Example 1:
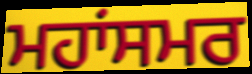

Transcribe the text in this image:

ਮਹਾਂਸਮਰ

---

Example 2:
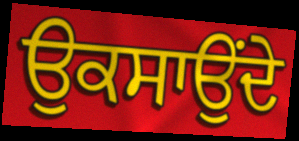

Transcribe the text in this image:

ਉਕਸਾਉਂਦੇ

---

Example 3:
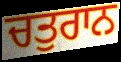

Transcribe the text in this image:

ਚਤੁਰਾਨ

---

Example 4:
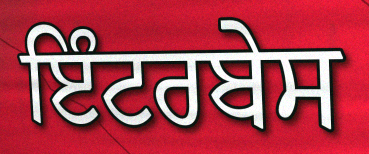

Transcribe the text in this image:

ਇੰਟਰਬੇਸ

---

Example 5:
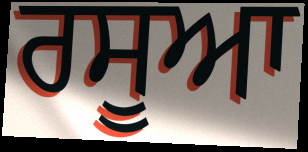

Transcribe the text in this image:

ਰਸੂਆ